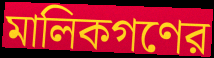
মালিকগণের